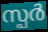
സ്പർ